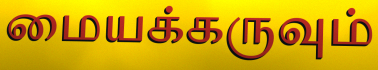
மையக்கருவும்